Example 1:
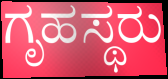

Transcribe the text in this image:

ಗೃಹಸ್ಥರು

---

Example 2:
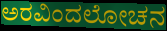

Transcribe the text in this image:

ಅರವಿಂದಲೋಚನ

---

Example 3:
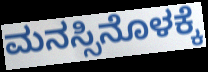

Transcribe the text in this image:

ಮನಸ್ಸಿನೊಳಕ್ಕೆ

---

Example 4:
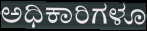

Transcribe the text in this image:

ಅಧಿಕಾರಿಗಳೂ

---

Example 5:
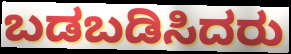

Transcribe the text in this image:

ಬಡಬಡಿಸಿದರು